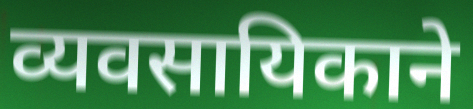
व्यवसायिकाने